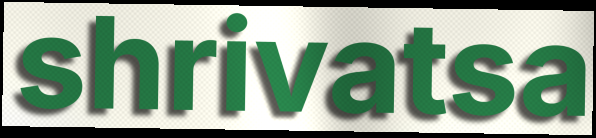
shrivatsa